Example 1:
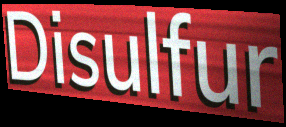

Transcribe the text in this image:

Disulfur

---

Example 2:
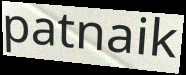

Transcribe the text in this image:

patnaik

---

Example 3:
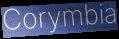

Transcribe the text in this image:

Corymbia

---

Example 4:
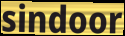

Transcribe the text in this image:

sindoor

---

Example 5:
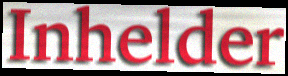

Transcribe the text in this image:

Inhelder